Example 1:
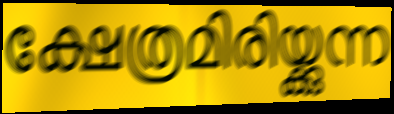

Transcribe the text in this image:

ക്ഷേത്രമിരിയ്ക്കുന്ന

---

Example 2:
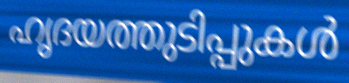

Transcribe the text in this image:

ഹൃദയത്തുടിപ്പുകൾ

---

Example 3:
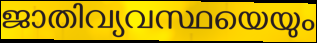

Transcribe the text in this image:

ജാതിവ്യവസ്ഥയെയും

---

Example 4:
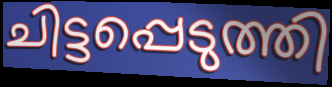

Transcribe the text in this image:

ചിട്ടപ്പെടുത്തി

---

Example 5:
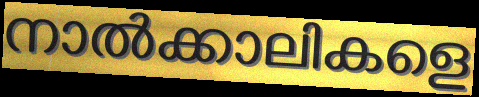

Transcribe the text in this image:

നാൽക്കാലികളെ